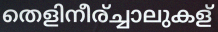
തെളിനീര്ച്ചാലുകള്